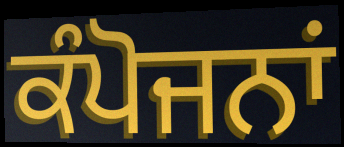
ਕੰਪੋਜਨਾਂ